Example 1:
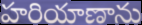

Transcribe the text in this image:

హరియాణాను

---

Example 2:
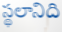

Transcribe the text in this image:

స్థలానిది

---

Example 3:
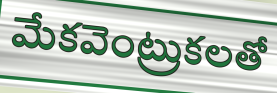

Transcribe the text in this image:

మేకవెంట్రుకలతో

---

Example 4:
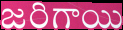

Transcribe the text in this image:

జరిగాయి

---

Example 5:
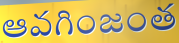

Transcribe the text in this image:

ఆవగింజంత